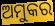
ଅମୁକର